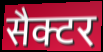
सैक्टर